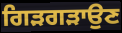
ਗਿੜਗੜਾਉਣ